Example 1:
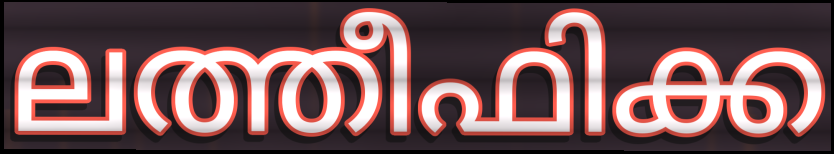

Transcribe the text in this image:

ലത്തീഫിക്ക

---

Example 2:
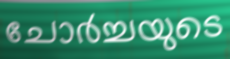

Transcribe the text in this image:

ചോർച്ചയുടെ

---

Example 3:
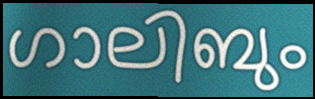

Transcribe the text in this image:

ഗാലിബും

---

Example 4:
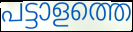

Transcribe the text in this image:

പട്ടാളത്തെ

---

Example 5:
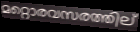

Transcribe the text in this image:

മറ്റൊരവസരത്തില്